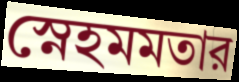
স্নেহমমতার